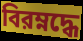
বিরম্নদ্ধে